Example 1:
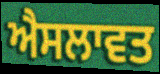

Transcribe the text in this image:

ਐਸਲਾਵਤ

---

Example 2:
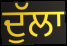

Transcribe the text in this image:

ਦੁੱਲਾ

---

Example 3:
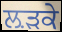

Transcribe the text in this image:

ਲ਼ਡ਼ਕੇ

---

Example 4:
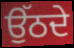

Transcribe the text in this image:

ਉੱਠਦੇ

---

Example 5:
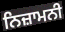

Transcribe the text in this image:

ਨਿਜ਼ਾਮਨੀ